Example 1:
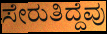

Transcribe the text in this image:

ಸೇರುತಿದ್ದೆವು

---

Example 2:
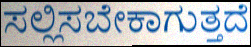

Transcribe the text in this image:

ಸಲ್ಲಿಸಬೇಕಾಗುತ್ತದೆ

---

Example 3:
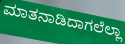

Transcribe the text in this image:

ಮಾತನಾಡಿದಾಗಲೆಲ್ಲಾ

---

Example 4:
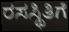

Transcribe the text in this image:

ರಸಸ್ಥಿತಿಗೆ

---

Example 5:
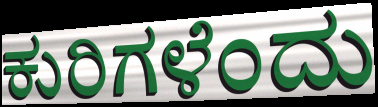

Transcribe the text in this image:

ಕುರಿಗಳೆಂದು